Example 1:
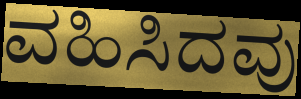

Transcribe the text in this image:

ವಹಿಸಿದವು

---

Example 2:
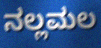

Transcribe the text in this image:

ನಲ್ಲಮಲ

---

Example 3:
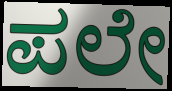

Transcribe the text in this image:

ಪಲೇ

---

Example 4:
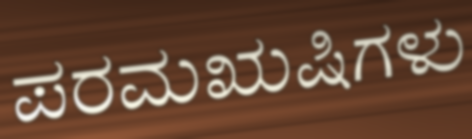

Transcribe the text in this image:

ಪರಮಋಷಿಗಳು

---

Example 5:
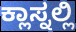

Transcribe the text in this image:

ಕ್ಲಾಸ್ನಲ್ಲಿ